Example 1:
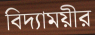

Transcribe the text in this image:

বিদ্যাময়ীর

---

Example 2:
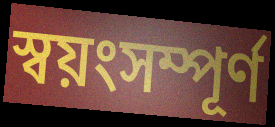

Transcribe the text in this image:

স্বয়ংসম্পূর্ণ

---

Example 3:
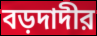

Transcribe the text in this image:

বড়দাদীর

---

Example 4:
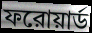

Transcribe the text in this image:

ফরোয়ার্ড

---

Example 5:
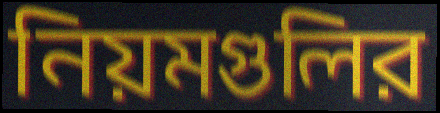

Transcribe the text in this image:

নিয়মগুলির